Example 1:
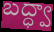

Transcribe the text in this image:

బద్ధ్వా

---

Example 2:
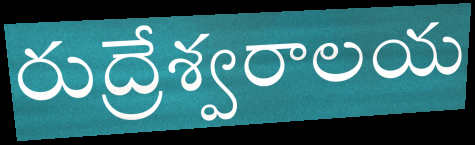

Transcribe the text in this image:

రుద్రేశ్వరాలయ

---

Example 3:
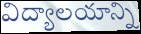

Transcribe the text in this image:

విద్యాలయాన్ని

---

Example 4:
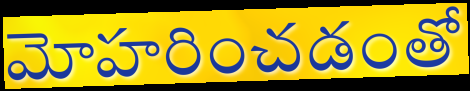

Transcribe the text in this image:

మోహరించడంతో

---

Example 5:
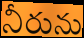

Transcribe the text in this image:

నీరును